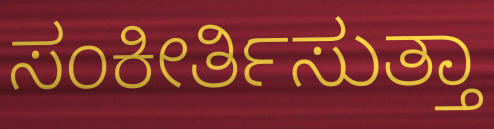
ಸಂಕೀರ್ತಿಸುತ್ತಾ